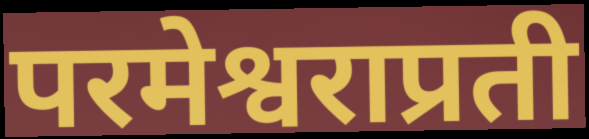
परमेश्वराप्रती